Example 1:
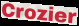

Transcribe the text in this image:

Crozier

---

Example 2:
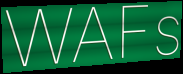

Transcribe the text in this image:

WAFs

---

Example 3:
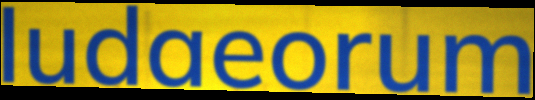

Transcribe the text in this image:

Iudaeorum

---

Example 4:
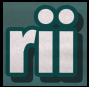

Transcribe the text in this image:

rii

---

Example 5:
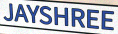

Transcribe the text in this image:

JAYSHREE